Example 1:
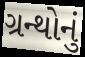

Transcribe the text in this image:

ગ્રન્થોનું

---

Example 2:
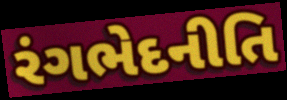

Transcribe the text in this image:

રંગભેદનીતિ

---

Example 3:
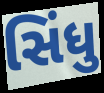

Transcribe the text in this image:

સિંધુ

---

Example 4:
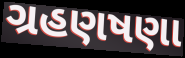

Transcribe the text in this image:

ગ્રહણષણા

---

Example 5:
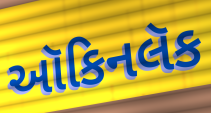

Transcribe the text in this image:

ઑકિનલૅક